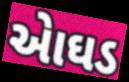
એાઘડ